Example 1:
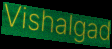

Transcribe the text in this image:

Vishalgad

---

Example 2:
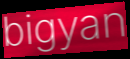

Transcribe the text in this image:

bigyan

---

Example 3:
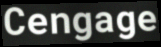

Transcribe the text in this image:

Cengage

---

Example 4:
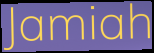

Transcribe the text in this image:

Jamiah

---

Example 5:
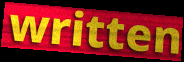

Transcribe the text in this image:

written